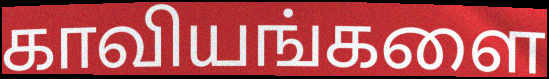
காவியங்களை